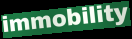
immobility